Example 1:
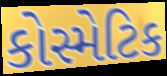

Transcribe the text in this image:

કોસ્મેટિક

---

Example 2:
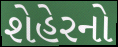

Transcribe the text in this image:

શેહેરનો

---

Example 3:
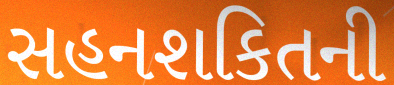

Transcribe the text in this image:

સહનશકિતની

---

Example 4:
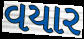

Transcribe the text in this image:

વયાર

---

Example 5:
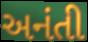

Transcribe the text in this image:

અનંતી